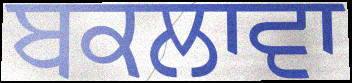
ਬਕਲਾਵਾ